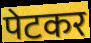
पेटकर